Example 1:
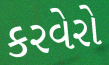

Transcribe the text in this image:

કરવેરો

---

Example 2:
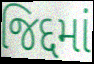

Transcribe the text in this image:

જિદ્દમાં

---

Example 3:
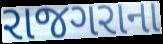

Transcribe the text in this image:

રાજગરાના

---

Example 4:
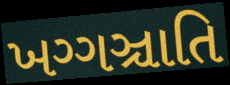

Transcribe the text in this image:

ખગ્ગઞ્ચાતિ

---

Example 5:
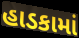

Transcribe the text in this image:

હાડકામાં